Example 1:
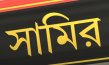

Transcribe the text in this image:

সামির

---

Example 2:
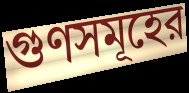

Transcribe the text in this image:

গুণসমূহের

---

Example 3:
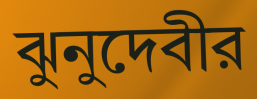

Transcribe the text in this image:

ঝুনুদেবীর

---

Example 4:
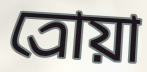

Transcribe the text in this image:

ত্রোয়া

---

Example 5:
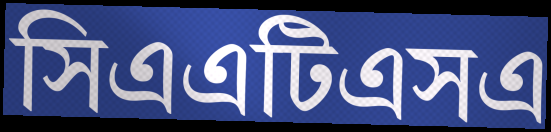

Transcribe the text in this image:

সিএএটিএসএ